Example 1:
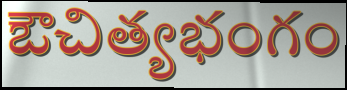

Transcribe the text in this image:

ఔచిత్యభంగం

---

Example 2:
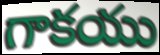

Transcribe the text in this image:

గాకయు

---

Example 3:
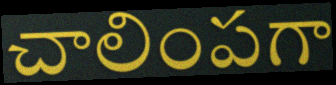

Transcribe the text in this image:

చాలింపగా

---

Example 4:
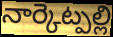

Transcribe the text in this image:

నార్కెట్పల్లి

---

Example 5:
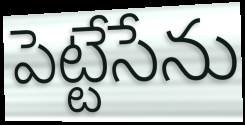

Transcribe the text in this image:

పెట్టేసేను